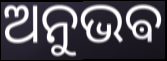
ଅନୁଭଵ